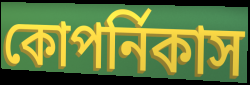
কোপর্নিকাস